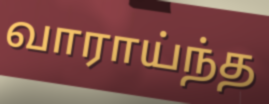
வாராய்ந்த